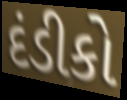
દંડીકો